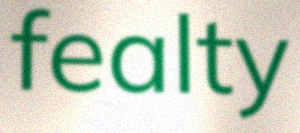
fealty